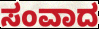
ಸಂವಾದ